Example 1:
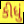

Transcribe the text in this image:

કીધું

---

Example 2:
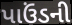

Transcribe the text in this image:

પાઉંડની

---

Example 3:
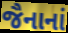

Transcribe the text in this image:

જૈનાનાં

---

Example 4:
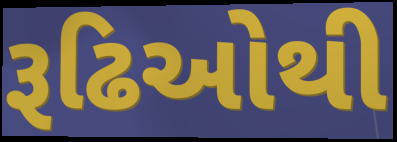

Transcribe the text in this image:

રૂઢિઓથી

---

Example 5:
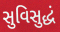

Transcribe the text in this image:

સુવિસુદ્ધં